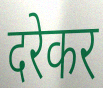
दरेकर